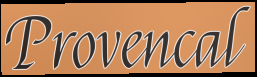
Provencal